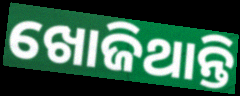
ଖୋଜିଥାନ୍ତି